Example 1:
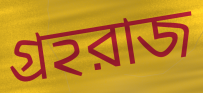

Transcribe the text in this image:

গ্রহরাজ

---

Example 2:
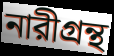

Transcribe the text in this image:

নারীগ্রন্থ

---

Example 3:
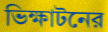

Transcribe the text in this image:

ভিক্ষাটনের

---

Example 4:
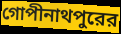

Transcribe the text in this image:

গোপীনাথপুরের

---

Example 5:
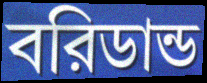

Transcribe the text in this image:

বরিডান্ড